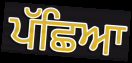
ਪੱਛਿਆ